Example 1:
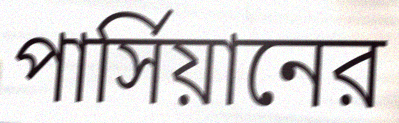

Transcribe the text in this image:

পার্সিয়ানের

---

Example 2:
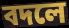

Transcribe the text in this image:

বদলে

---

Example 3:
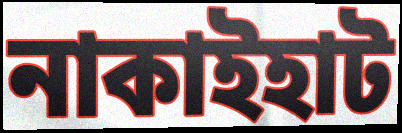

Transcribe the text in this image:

নাকাইহাট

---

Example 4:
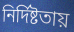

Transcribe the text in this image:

নির্দিষ্টতায়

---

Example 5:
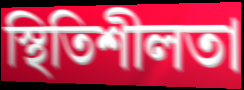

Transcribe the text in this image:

স্থিতিশীলতা